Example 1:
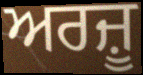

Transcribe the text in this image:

ਅਰਜ਼ੂ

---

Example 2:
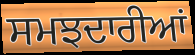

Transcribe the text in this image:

ਸਮਝਦਾਰੀਆਂ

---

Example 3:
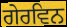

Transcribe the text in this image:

ਗੇਰਵਿਨ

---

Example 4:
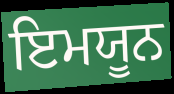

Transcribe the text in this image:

ਇਮਯੂਨ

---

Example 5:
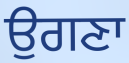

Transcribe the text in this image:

ਉਗਣਾ